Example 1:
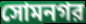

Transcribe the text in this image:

সোমনগর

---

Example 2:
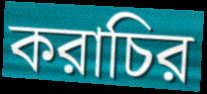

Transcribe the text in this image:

করাচির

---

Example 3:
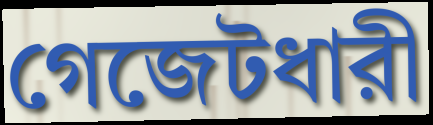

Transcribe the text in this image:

গেজেটধারী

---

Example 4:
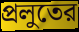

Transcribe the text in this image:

প্রলুতের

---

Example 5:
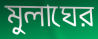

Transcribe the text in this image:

মুলাঘের